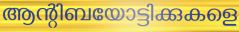
ആന്റിബയോട്ടിക്കുകളെ